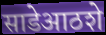
साडेआठशे